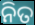
ନିତ